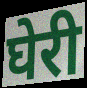
घेरी